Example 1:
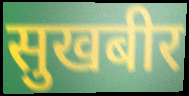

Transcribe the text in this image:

सुखबीर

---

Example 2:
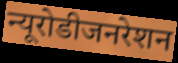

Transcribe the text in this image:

न्यूरोडीजनरेशन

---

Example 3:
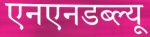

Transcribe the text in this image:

एनएनडब्ल्यू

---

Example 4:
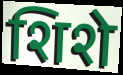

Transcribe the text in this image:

शिशे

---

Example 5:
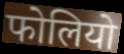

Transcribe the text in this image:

फोलियो